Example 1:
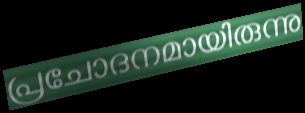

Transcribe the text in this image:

പ്രചോദനമായിരുന്നു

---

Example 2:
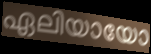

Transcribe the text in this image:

ഏലിയായോ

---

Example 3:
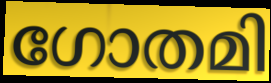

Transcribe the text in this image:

ഗോതമി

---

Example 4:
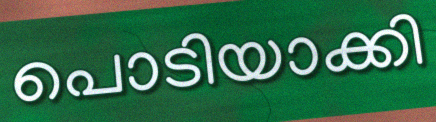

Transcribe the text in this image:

പൊടിയാക്കി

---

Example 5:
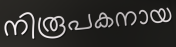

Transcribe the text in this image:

നിരൂപകനായ